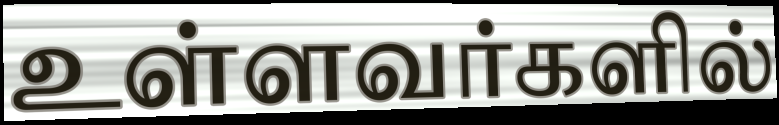
உள்ளவர்களில்